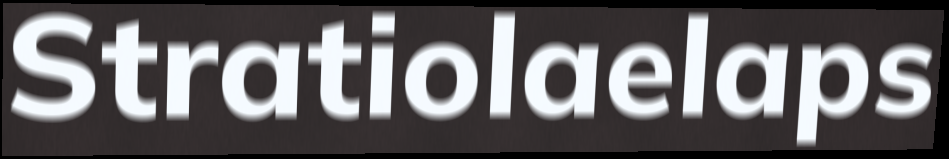
Stratiolaelaps